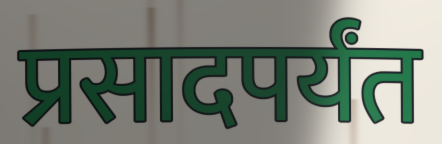
प्रसादपर्यंत